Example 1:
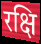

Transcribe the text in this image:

रक्षि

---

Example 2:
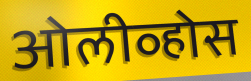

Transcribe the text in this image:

ओलीव्होस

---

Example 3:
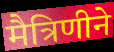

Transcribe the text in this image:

मैत्रिणीने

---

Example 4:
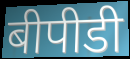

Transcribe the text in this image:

बीपीडी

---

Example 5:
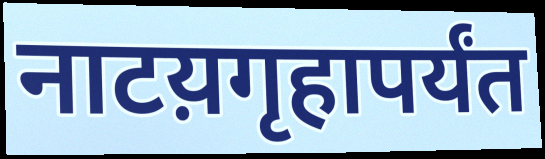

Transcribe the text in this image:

नाटय़गृहापर्यंत